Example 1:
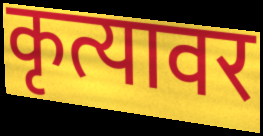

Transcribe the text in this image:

कृत्यावर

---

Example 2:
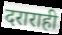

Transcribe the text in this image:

दराराही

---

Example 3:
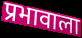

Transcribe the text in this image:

प्रभावाला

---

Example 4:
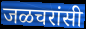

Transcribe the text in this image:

जळचरांसी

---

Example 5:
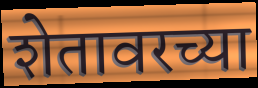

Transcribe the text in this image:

शेतावरच्या